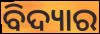
ବିଦ୍ୟାର